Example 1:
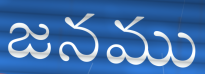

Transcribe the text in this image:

జనము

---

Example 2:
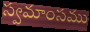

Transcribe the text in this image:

స్వమాంసము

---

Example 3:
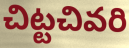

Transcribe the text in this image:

చిట్టచివరి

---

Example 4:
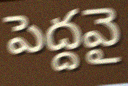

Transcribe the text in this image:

పెద్దవై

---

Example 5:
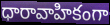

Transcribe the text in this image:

ధారావాహికంగా